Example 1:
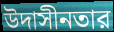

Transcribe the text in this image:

উদাসীনতার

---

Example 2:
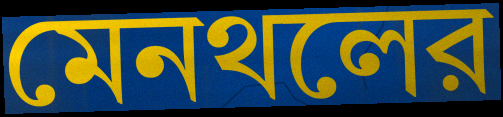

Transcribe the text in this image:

মেনথলের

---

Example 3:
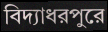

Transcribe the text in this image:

বিদ্যাধরপুরে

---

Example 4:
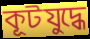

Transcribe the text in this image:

কূটযুদ্ধে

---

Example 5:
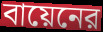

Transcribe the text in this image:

বায়েনের